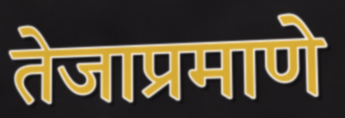
तेजाप्रमाणे